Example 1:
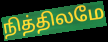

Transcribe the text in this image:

நித்திலமே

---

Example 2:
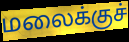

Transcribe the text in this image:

மலைக்குச்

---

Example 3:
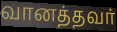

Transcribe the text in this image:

வானத்தவர்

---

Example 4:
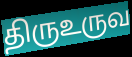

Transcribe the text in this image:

திருஉருவ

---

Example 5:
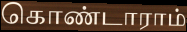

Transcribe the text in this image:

கொண்டாராம்